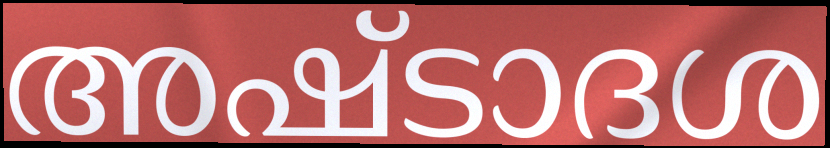
അഷ്ടാദശ